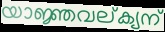
യാജ്ഞവല്ക്യന്